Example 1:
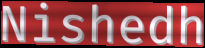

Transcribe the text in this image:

Nishedh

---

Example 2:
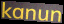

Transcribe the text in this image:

kanun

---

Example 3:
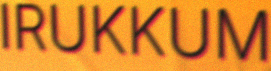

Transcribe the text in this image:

IRUKKUM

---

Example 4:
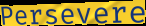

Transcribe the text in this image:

Persevere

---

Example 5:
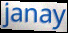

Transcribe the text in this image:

janay